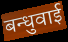
बन्धुवाई